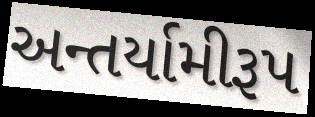
અન્તર્યામીરૂપ